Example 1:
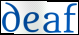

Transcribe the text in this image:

deaf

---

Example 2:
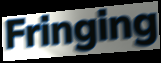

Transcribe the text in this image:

Fringing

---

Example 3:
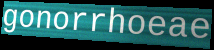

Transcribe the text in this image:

gonorrhoeae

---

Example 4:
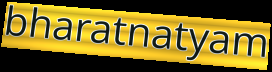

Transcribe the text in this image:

bharatnatyam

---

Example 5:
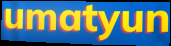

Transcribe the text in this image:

umatyun